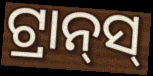
ଟ୍ରାନ୍‍ସ୍